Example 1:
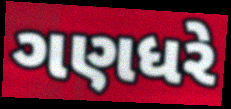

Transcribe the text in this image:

ગણધરે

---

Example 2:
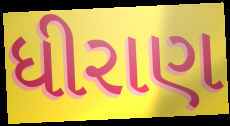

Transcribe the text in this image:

ધીરાણ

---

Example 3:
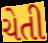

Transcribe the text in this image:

ચેતી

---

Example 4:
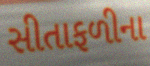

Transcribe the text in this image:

સીતાફળીના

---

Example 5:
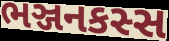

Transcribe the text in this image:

ભઞ્જનકસ્સ